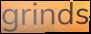
grinds